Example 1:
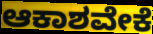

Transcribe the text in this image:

ಆಕಾಶವೇಕೆ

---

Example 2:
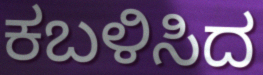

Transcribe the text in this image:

ಕಬಳಿಸಿದ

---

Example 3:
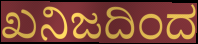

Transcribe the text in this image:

ಖನಿಜದಿಂದ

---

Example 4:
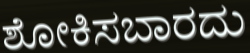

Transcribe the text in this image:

ಶೋಕಿಸಬಾರದು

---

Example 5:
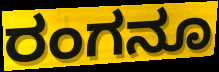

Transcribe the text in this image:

ರಂಗನೂ